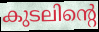
കുടലിന്റെ